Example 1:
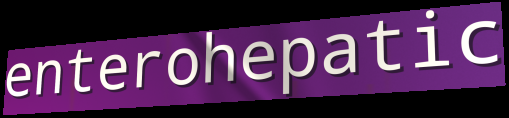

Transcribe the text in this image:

enterohepatic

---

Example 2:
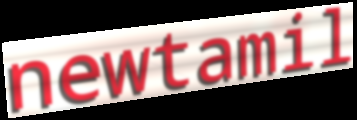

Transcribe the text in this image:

newtamil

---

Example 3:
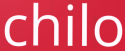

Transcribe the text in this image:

chilo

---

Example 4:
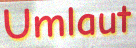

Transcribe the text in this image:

Umlaut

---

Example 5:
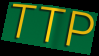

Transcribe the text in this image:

TTP